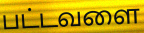
பட்டவளை